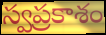
స్వప్రకాశం